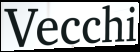
Vecchi